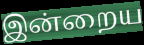
இன்றைய